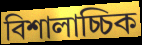
বিশালাচ্চিক